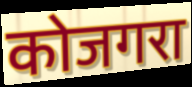
कोजगरा